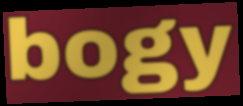
bogy